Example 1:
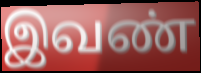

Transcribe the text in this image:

இவண்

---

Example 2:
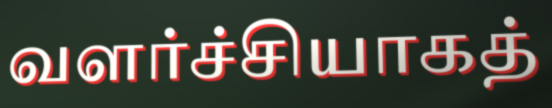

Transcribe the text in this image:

வளர்ச்சியாகத்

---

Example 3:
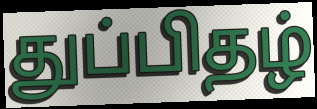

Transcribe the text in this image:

துப்பிதழ்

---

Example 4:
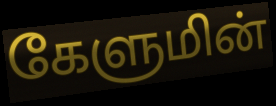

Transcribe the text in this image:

கேளுமின்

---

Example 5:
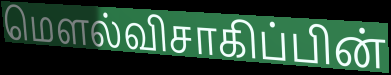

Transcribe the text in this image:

மௌல்விசாகிப்பின்